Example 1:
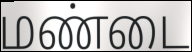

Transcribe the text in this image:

மண்டை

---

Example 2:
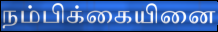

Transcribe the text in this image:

நம்பிக்கையினை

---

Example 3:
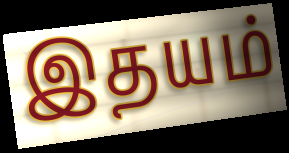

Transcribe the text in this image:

இதயம்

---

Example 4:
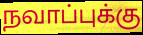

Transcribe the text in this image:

நவாப்புக்கு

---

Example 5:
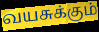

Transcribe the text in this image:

வயசுக்கும்